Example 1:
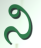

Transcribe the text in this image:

ನಿ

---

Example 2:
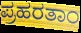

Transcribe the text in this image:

ಪ್ರಹರತಾಂ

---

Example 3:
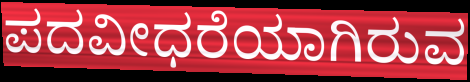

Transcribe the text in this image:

ಪದವೀಧರೆಯಾಗಿರುವ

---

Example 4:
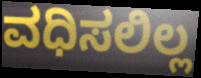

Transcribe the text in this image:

ವಧಿಸಲಿಲ್ಲ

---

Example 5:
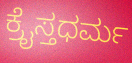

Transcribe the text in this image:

ಕ್ರೈಸ್ತಧರ್ಮ